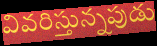
వివరిస్తున్నపుడు